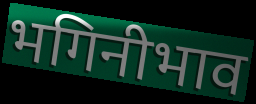
भगिनीभाव